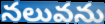
నలువను